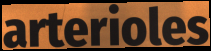
arterioles